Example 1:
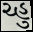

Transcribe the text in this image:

ચ્હુ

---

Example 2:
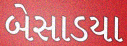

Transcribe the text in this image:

બેસાડયા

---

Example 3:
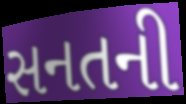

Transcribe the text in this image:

સનતની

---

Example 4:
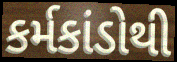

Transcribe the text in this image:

કર્મકાંડોથી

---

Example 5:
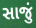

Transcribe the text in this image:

સાજું